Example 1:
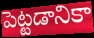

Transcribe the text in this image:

పెట్టడానికా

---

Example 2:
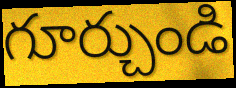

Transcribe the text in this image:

గూర్చుండి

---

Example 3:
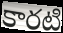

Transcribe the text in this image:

కారటి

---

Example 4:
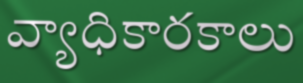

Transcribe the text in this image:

వ్యాధికారకాలు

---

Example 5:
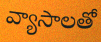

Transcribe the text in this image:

వ్యాసాలతో